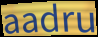
aadru